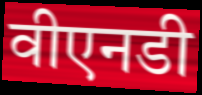
वीएनडी